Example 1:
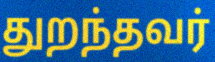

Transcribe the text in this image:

துறந்தவர்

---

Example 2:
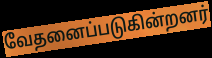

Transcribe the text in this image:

வேதனைப்படுகின்றனர்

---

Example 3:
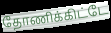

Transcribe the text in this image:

தோணிக்கிட்டே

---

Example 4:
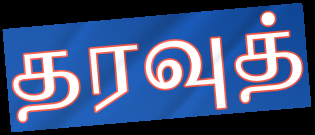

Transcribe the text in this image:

தரவுத்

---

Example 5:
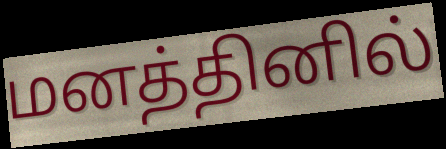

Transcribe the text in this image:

மனத்தினில்